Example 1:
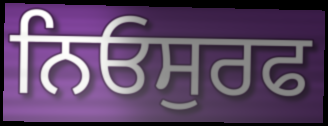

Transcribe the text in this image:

ਨਿਓਸੁਰਫ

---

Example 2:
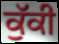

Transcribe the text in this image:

ਕੁੱਕੀ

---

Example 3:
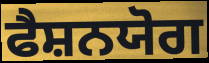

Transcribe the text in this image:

ਫੈਸ਼ਨਯੋਗ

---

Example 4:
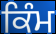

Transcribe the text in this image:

ਕਿੰਮ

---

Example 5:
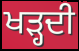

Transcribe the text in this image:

ਖੜ੍ਹਦੀ